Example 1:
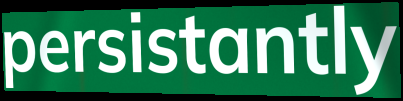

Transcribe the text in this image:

persistantly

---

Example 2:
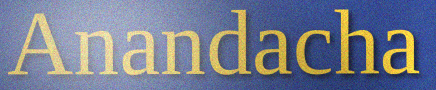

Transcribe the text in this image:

Anandacha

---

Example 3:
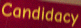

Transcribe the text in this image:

Candidacy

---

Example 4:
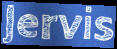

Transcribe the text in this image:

Jervis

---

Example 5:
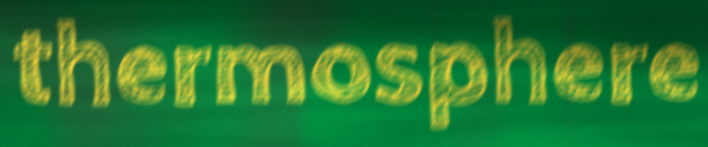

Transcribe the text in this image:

thermosphere